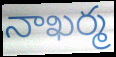
నాఖర్మ